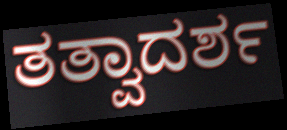
ತತ್ವಾದರ್ಶ